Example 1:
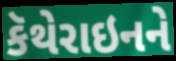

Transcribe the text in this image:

કૅથેરાઇનને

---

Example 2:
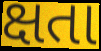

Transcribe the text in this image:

ક્ષતા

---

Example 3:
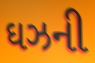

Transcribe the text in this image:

ઘઝની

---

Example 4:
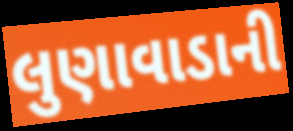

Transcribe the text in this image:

લુણાવાડાની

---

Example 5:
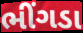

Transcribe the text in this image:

ભીંગડા